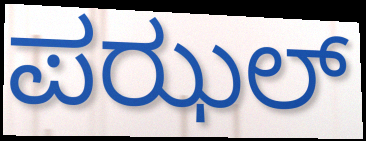
ಪಝಲ್